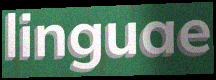
linguae